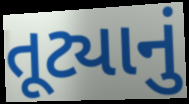
તૂટ્યાનું